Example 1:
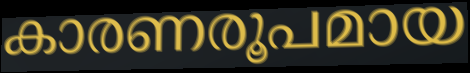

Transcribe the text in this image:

കാരണരൂപമായ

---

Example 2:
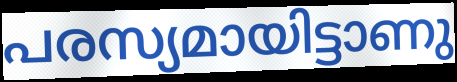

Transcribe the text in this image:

പരസ്യമായിട്ടാണു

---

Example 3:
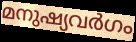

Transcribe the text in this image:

മനുഷ്യവർഗം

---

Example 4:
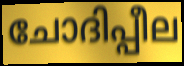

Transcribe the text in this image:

ചോദിപ്പീല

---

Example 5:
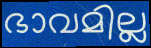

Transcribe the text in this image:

ഭാവമില്ല